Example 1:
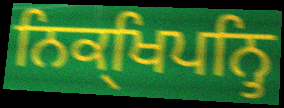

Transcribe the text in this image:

ਨਿਕ੍ਖਿਪਨ੍ਤਿ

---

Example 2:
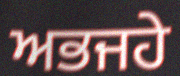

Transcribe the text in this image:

ਅਭਜਹੇ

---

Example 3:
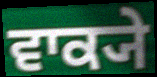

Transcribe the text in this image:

ਵਾਕ੍ਯੇ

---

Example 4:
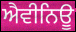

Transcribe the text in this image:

ਐਵੀਨਿਊ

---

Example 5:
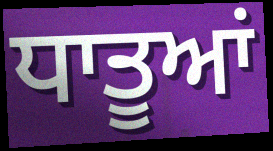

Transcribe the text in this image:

ਧਾਤੂਆਂ